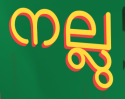
നല്ലു